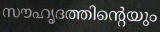
സൗഹൃദത്തിന്റെയും